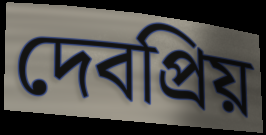
দেবপ্রিয়